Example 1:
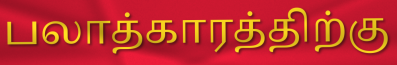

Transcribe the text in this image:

பலாத்காரத்திற்கு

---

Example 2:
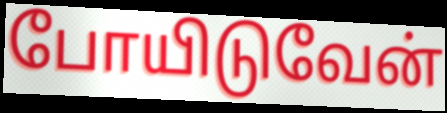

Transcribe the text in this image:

போயிடுவேன்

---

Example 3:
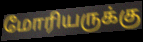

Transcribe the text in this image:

மோரியருக்கு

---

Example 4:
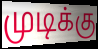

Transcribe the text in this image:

முடிக்கு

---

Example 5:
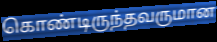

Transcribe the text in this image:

கொண்டிருந்தவருமான